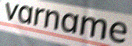
varname